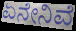
ಏನೇನಿವೆ